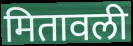
मितावली